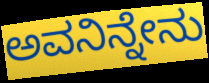
ಅವನಿನ್ನೇನು